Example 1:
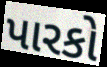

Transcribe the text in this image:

પારકો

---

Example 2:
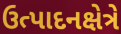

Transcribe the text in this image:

ઉત્પાદનક્ષેત્રે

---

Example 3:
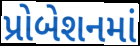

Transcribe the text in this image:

પ્રોબેશનમાં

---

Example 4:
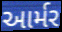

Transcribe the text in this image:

આર્મર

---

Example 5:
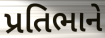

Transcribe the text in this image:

પ્રતિભાને